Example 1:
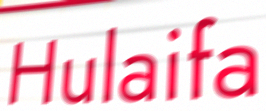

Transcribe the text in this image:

Hulaifa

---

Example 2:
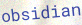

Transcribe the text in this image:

obsidian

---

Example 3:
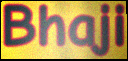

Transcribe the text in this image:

Bhaji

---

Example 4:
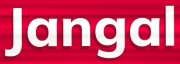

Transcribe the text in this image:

Jangal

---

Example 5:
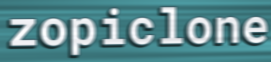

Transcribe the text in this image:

zopiclone